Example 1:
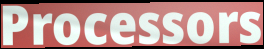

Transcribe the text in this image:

Processors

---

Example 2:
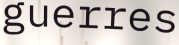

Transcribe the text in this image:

guerres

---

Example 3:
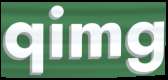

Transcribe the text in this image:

qimg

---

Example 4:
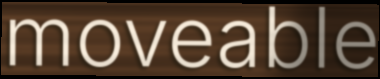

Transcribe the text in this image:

moveable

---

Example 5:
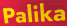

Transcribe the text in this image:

Palika